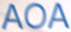
AOA